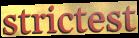
strictest